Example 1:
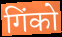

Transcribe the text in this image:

गिंको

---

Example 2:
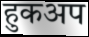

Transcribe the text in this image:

हुकअप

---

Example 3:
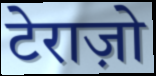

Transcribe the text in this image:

टेराज़ो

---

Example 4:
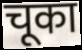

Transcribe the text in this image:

चूका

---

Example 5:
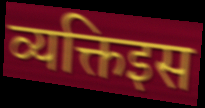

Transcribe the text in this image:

व्यक्तिइस